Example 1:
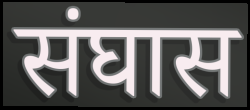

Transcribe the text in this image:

संघास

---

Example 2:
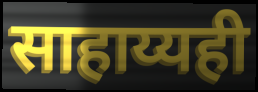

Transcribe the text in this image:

साहाय्यही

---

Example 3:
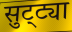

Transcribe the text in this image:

सुट्‌ट्या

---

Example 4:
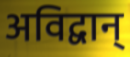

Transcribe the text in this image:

अविद्वान्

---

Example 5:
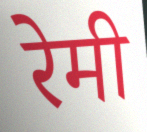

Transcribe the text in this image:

रेमी